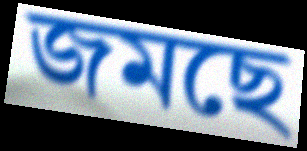
জমছে